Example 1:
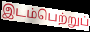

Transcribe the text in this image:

இடம்பெற்றுப்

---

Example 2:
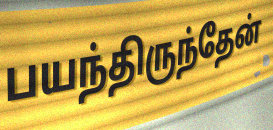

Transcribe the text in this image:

பயந்திருந்தேன்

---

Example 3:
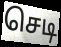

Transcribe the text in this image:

செடி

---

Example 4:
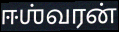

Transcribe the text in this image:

ஈஶ்வரன்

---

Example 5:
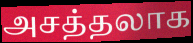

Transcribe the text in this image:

அசத்தலாக